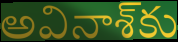
అవినాశ్‌కు